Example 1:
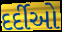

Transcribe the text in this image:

દર્દીઓ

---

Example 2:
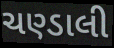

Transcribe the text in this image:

ચણ્ડાલી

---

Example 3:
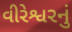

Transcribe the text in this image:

વીરેશ્વરનું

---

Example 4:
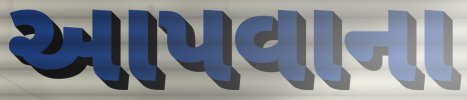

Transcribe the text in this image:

આપવાના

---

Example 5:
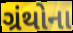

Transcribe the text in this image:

ગ્રંથોના